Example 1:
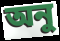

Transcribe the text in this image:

অনু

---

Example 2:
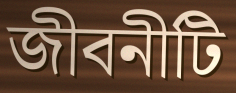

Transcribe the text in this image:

জীবনীটি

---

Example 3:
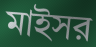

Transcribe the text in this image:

মাইসর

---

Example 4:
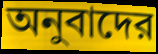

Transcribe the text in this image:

অনুবাদের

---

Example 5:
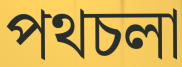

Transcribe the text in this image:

পথচলা